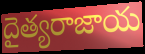
దైత్యరాజాయ